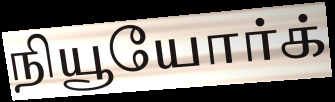
நியூயோர்க்